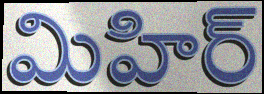
మిహిర్